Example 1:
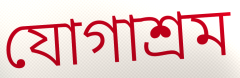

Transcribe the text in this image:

যোগাশ্রম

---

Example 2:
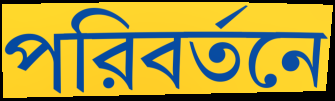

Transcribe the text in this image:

পরিবর্তনে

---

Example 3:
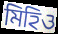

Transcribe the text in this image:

মিহিও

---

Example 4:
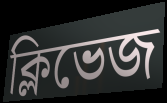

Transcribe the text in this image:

ক্লিভেজ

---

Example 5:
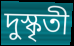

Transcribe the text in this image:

দুস্কৃতী